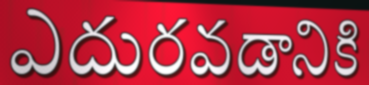
ఎదురవడానికి